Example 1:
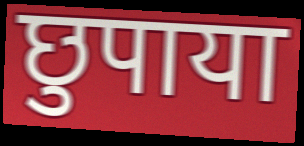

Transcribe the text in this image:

छुपाया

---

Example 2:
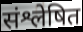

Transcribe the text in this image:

संश्लेषित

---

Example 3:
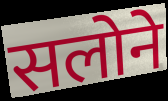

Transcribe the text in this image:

सलोने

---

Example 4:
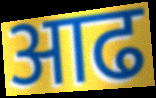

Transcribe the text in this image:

आढ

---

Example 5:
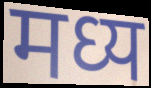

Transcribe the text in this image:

मध्‍य